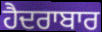
ਹੈਦਰਾਬਾਰ